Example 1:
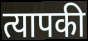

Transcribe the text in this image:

त्यापकी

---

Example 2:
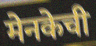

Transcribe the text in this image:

मेनकेची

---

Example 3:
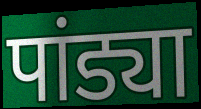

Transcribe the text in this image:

पांड्या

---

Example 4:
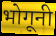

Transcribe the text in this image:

भोगूनी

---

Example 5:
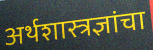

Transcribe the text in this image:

अर्थशास्त्रज्ञांचा